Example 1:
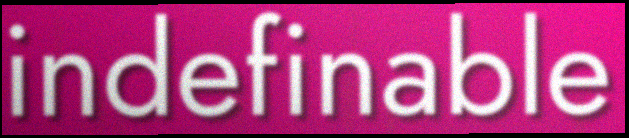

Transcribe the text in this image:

indefinable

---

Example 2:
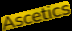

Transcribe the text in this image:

Ascetics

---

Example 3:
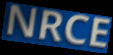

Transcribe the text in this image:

NRCE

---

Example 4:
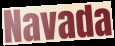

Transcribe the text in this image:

Navada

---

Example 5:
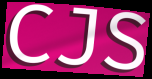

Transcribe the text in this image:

CJS